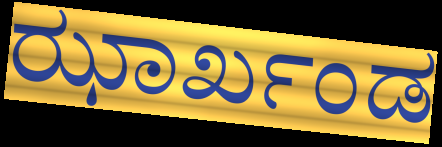
ಝಾರ್ಖಂಡ